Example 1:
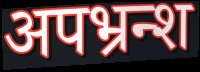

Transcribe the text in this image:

अपभ्रन्श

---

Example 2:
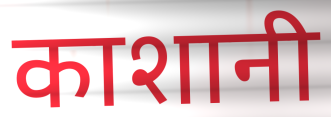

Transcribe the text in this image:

काशानी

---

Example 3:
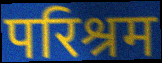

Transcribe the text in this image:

परिश्रम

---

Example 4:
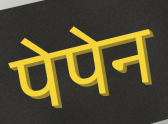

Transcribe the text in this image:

पेपेन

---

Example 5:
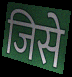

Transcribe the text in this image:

जिसे